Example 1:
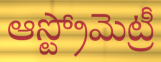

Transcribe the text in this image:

ఆస్ట్రోమెట్రీ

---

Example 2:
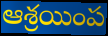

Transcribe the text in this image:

ఆశ్రయింప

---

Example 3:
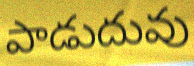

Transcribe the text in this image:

పాడుదువు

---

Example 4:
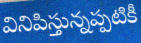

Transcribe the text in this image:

వినిపిస్తున్నప్పటికీ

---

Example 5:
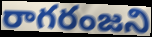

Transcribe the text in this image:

రాగరంజని